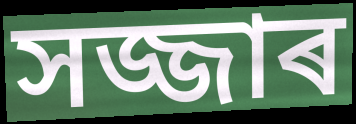
সজ্জাৰ